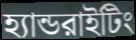
হ্যান্ডরাইটিং